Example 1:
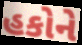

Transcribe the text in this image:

હકોને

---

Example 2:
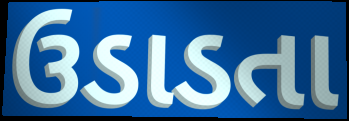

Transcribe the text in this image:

ઉડાડતા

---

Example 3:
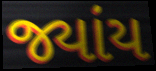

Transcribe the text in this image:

જ્યાંય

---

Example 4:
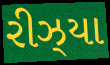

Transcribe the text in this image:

રીઝ્યા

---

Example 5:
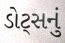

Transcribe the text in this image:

ડોટ્સનું